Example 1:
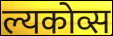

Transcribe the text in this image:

ल्यकोव्स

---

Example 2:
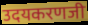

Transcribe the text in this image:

उदयकरणजी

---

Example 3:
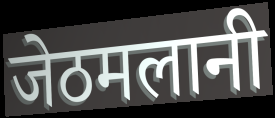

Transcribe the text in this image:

जेठमलानी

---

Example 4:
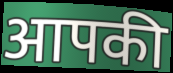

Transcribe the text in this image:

आपकी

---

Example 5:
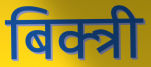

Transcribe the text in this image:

बिक्त्री